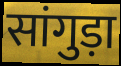
सांगुड़ा